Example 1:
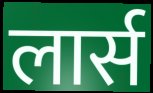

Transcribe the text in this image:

लार्स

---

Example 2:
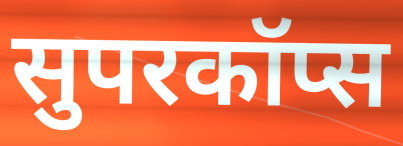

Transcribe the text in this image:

सुपरकॉप्स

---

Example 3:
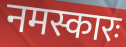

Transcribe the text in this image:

नमस्कारः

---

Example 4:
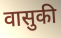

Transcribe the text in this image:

वासुकी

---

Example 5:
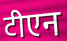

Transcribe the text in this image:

टीएन